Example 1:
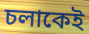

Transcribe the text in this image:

চলাকেই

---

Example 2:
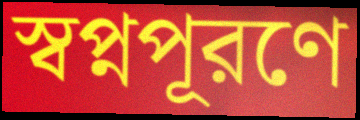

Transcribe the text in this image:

স্বপ্নপূরণে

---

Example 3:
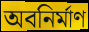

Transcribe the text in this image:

অবনির্মাণ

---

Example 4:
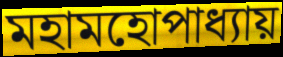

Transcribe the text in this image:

মহামহোপাধ্যায়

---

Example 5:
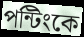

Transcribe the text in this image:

পন্টিংকে